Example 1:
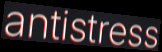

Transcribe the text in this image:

antistress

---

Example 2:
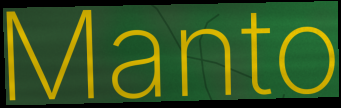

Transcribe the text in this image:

Manto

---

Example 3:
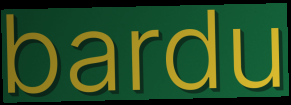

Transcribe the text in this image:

bardu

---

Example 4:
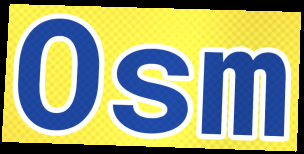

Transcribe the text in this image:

Osm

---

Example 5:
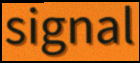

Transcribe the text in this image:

signal